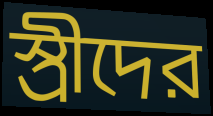
স্ত্রীদের